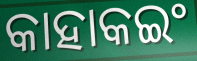
କାହାକଇଂ